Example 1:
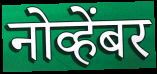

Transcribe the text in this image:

नोव्हेंबर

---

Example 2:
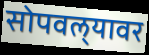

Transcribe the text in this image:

सोपवल्यावर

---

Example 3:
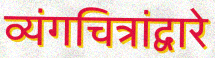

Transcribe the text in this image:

व्यंगचित्रांद्वारे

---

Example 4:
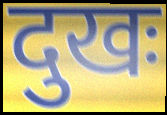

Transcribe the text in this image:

दुखः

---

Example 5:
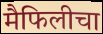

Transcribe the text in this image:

मैफिलीचा